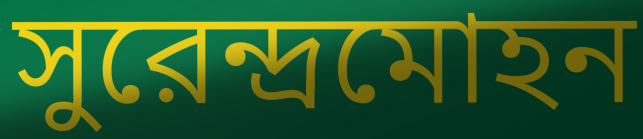
সুরেন্দ্রমোহন